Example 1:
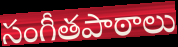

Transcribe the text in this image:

సంగీతపాఠాలు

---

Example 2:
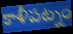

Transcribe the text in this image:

కాళీపట్నం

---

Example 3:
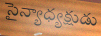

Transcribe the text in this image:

సైన్యాధ్యక్షుడు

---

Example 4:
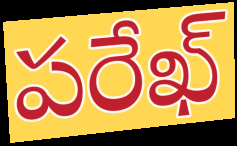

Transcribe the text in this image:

పరేఖ్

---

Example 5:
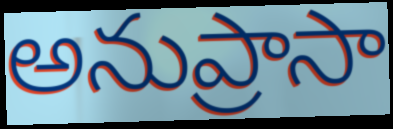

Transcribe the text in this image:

అనుప్రాసా